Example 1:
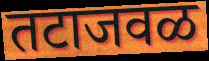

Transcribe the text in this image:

तटाजवळ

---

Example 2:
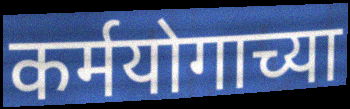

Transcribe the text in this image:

कर्मयोगाच्या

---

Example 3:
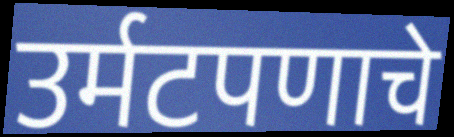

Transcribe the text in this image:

उर्मटपणाचे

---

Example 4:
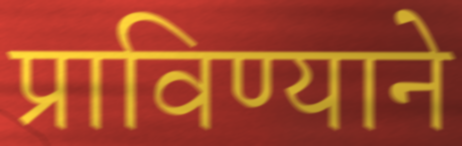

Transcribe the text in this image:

प्राविण्याने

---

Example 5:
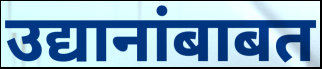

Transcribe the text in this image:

उद्यानांबाबत